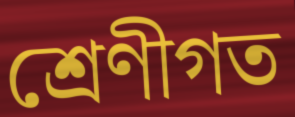
শ্ৰেণীগত